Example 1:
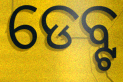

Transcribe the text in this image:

ଡେବ୍ଟ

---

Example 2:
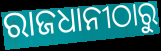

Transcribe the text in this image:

ରାଜଧାନୀଠାରୁ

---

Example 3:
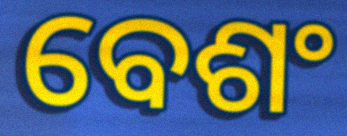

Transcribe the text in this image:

ବେଶଂ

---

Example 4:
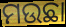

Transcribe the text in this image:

ମଉଛା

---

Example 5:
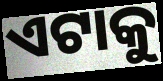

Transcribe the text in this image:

ଏଟାକୁ